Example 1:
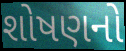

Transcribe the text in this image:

શોષણનો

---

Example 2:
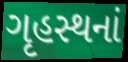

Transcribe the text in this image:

ગૃહસ્થનાં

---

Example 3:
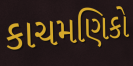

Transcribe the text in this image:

કાચમણિકો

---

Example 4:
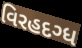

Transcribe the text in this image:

વિરહદગ્ધ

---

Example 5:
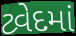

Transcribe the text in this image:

ટ્વેદમાં